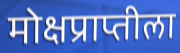
मोक्षप्राप्तीला